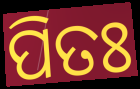
ପିତଃ